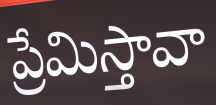
ప్రేమిస్తావా